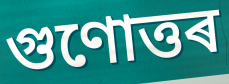
গুণোত্তৰ